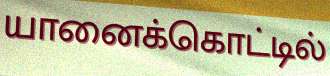
யானைக்கொட்டில்